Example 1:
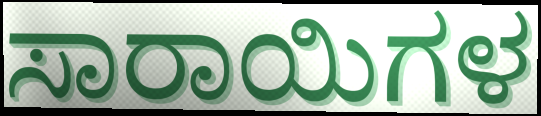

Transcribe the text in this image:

ಸಾರಾಯಿಗಳ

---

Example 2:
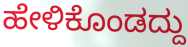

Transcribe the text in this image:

ಹೇಳಿಕೊಂಡದ್ದು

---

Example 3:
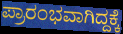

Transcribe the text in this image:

ಪ್ರಾರಂಭವಾಗಿದ್ದಕ್ಕೆ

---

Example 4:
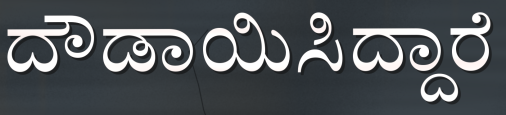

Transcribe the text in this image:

ದೌಡಾಯಿಸಿದ್ದಾರೆ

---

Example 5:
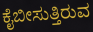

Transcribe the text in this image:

ಕೈಬೀಸುತ್ತಿರುವ